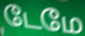
டேமே